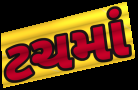
ટચમાં